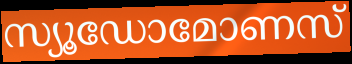
സ്യൂഡോമോണസ്